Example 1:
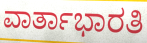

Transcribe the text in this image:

ವಾರ್ತಾಭಾರತಿ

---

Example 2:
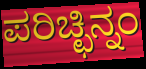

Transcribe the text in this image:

ಪರಿಚ್ಛಿನ್ನಂ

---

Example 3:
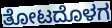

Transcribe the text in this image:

ತೋಟದೊಳಗ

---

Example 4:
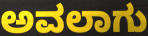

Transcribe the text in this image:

ಅವಲಾಗು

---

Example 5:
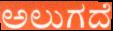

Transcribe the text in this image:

ಅಲುಗದೆ